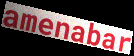
amenabar